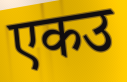
एकउ